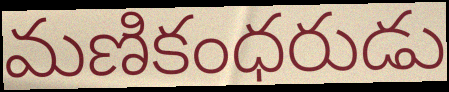
మణికంధరుడు